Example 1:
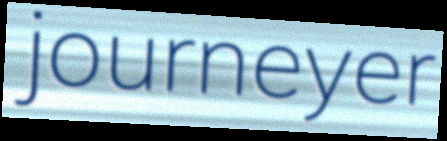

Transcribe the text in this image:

journeyer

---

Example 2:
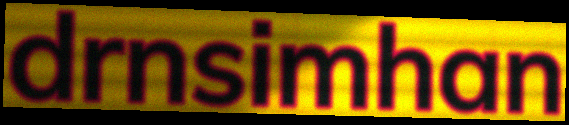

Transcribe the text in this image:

drnsimhan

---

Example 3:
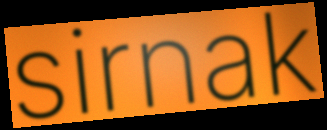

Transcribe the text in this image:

sirnak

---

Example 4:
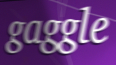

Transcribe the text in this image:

gaggle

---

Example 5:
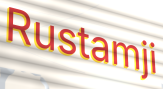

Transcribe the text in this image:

Rustamji